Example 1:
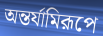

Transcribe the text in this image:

অন্তর্যামিরূপে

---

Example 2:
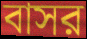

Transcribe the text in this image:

বাসর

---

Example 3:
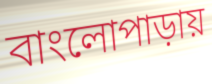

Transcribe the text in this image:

বাংলোপাড়ায়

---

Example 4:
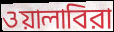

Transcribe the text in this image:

ওয়ালাবিরা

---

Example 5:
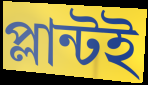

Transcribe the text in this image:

প্লান্টই